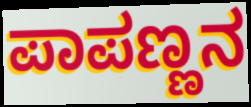
ಪಾಪಣ್ಣನ